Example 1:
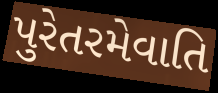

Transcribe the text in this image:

પુરેતરમેવાતિ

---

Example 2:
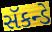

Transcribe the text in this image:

સૅકન્ડે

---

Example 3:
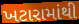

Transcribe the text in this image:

ખટારામાંથી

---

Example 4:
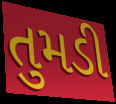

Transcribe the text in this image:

તુમડી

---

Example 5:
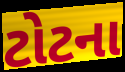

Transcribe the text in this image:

ટોટના